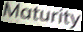
Maturity